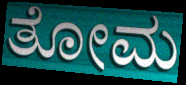
ತೋಮ